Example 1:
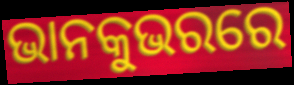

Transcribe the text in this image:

ଭାନକୁଭରରେ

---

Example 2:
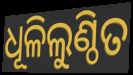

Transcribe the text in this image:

ଧୂଳିଲୁଣ୍ଠିତ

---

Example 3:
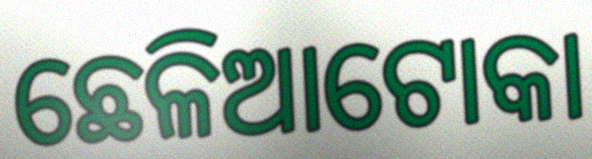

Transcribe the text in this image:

ଛେଳିଆଟୋକା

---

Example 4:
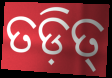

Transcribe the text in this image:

ତଡ଼ିତ୍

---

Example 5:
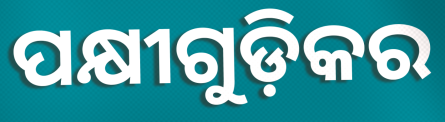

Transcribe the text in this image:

ପକ୍ଷୀଗୁଡ଼ିକର